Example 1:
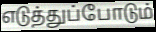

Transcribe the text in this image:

எடுத்துப்போடும்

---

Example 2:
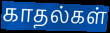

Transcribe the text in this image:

காதல்கள்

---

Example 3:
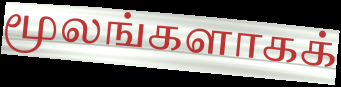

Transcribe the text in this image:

மூலங்களாகக்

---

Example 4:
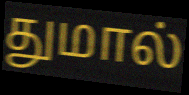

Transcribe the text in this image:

துமால்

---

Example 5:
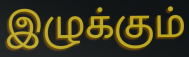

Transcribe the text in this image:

இழுக்கும்